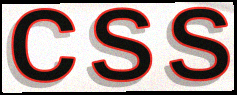
css